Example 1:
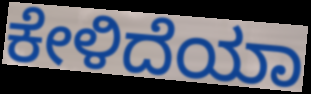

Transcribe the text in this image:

ಕೇಳಿದೆಯಾ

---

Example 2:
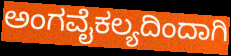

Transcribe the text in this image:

ಅಂಗವೈಕಲ್ಯದಿಂದಾಗಿ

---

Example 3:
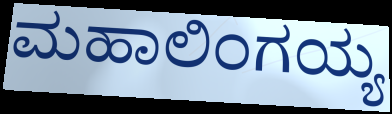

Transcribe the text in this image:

ಮಹಾಲಿಂಗಯ್ಯ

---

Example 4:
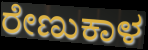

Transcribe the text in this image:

ರೇಣುಕಾಳ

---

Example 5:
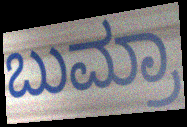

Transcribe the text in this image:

ಬುಮ್ರಾ